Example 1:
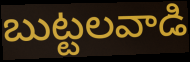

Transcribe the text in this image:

బుట్టలవాడి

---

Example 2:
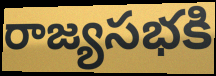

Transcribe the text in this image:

రాజ్యసభకి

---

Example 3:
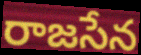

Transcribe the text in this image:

రాజసేన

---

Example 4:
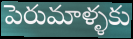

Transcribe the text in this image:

పెరుమాళ్ళకు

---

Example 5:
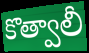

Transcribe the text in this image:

కొత్వాలీ